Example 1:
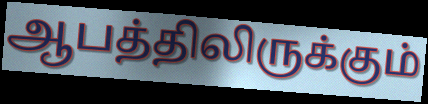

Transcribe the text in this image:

ஆபத்திலிருக்கும்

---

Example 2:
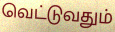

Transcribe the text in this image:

வெட்டுவதும்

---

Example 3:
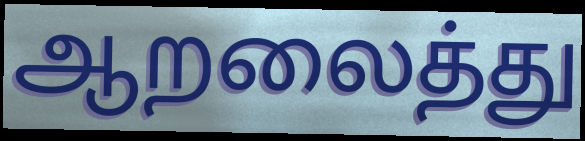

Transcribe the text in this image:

ஆறலைத்து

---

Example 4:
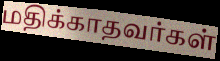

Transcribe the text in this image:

மதிக்காதவர்கள்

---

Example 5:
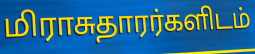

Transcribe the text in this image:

மிராசுதாரர்களிடம்